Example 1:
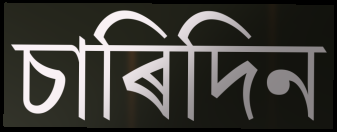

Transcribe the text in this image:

চাৰিদিন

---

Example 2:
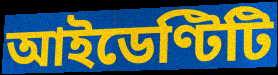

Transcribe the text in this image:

আইডেণ্টিটি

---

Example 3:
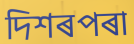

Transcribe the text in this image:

দিশৰপৰা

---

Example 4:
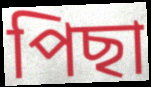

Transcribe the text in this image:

পিছা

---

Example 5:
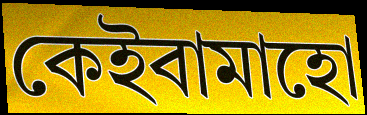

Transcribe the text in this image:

কেইবামাহো